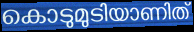
കൊടുമുടിയാണിത്